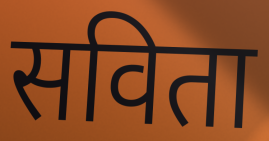
सविता